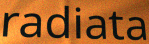
radiata